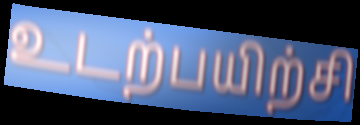
உடற்பயிற்சி